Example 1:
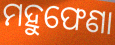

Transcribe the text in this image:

ମହୁଫେଣା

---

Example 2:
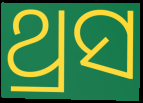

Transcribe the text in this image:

ଥ୍ରସ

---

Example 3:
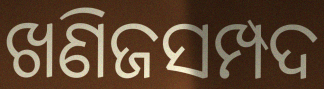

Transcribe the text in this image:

ଖଣିଜସମ୍ପଦ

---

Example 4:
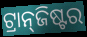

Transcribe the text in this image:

ଟ୍ରାନ୍‍ଜିଷ୍ଟର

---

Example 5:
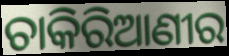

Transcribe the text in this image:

ଚାକିରିଆଣୀର